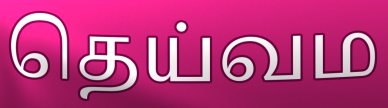
தெய்வம